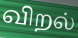
விறல்